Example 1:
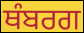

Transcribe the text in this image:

ਥੰਬਰਗ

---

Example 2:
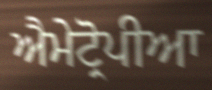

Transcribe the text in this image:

ਐਮੇਟ੍ਰੋਪੀਆ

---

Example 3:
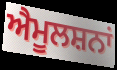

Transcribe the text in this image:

ਐਮੂਲਸ਼ਨਾਂ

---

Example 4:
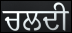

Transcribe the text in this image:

ਚਲਦੀ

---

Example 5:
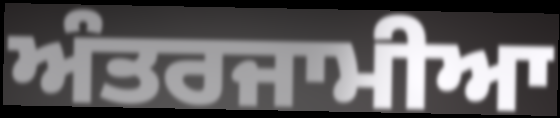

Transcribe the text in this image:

ਅੰਤਰਜਾਮੀਆ